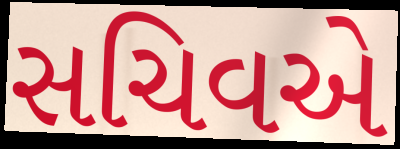
સચિવએ